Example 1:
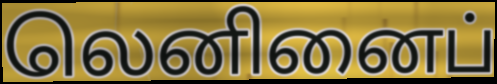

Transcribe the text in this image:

லெனினைப்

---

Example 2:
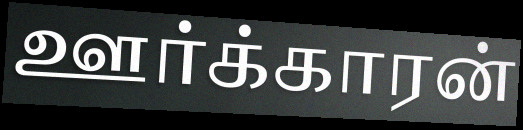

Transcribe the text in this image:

ஊர்க்காரன்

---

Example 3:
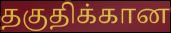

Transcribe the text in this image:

தகுதிக்கான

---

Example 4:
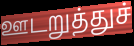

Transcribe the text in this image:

ஊடறுத்துச்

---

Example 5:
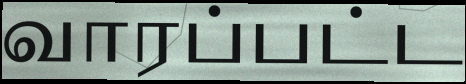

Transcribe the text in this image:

வாரப்பட்ட